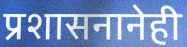
प्रशासनानेही